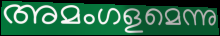
അമംഗളമെന്നു